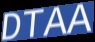
DTAA